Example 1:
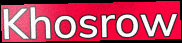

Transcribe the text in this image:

Khosrow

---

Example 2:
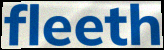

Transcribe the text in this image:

fleeth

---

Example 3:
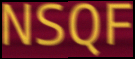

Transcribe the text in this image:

NSQF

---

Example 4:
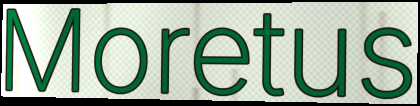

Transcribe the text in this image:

Moretus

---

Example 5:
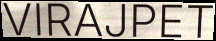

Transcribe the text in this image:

VIRAJPET